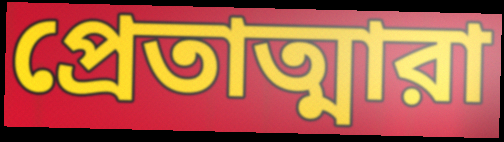
প্রেতাত্মারা